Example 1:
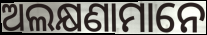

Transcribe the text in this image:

ଅଲକ୍ଷଣାମାନେ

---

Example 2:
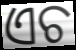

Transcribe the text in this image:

ଏଚ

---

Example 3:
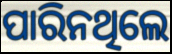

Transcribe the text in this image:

ପାରିନଥିଲେ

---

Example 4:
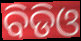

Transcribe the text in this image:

ବିଡିଓ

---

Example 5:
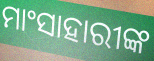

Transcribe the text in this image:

ମାଂସାହାରୀଙ୍କ